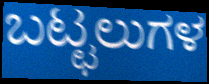
ಬಟ್ಟಲುಗಳ